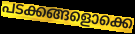
പടക്കങ്ങളൊക്കെ